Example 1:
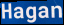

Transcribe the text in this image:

Hagan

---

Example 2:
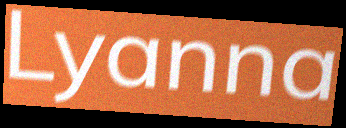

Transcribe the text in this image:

Lyanna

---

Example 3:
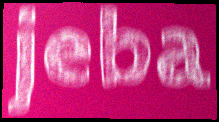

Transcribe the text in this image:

jeba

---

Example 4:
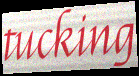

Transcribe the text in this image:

tucking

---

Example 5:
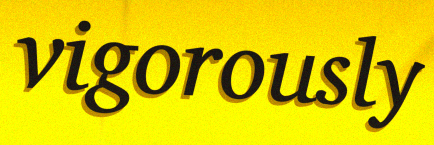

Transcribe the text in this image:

vigorously